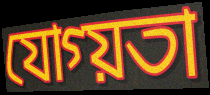
যোগ্য়তা